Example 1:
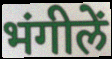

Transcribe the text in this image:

भंगीलें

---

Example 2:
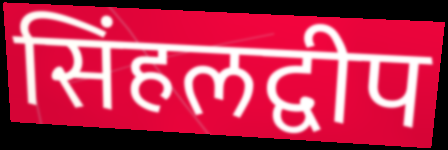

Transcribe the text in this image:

सिंहलद्वीप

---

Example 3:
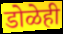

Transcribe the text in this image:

डोळेही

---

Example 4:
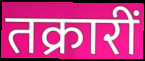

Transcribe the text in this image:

तक्रारीं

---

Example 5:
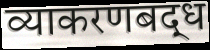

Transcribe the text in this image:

व्याकरणबद्ध